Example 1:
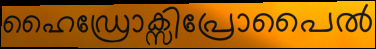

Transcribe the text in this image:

ഹൈഡ്രോക്സിപ്രോപൈൽ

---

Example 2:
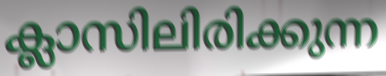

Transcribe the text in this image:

ക്ലാസിലിരിക്കുന്ന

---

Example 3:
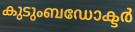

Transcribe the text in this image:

കുടുംബഡോക്ടർ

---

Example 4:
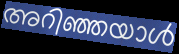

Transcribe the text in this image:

അറിഞ്ഞയാൾ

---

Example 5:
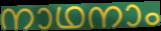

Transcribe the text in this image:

നാഥനാം